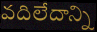
వదిలేదాన్ని